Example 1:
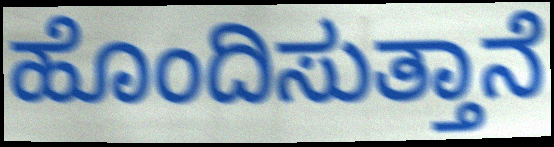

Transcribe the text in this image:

ಹೊಂದಿಸುತ್ತಾನೆ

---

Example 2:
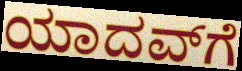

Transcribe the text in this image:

ಯಾದವ್‌ಗೆ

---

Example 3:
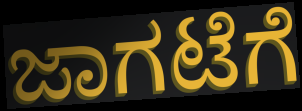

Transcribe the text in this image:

ಜಾಗಟೆಗೆ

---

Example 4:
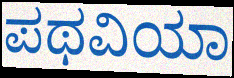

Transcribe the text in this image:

ಪಥವಿಯಾ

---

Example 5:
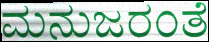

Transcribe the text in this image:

ಮನುಜರಂತೆ